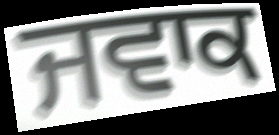
ਜਵਾਕ